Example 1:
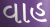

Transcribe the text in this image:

વાહ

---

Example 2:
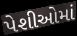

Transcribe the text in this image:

પેશીઓમાં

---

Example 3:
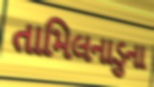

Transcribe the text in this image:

તામિલનાડુના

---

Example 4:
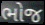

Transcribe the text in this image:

ભોજ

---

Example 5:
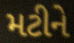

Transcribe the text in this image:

મટીને